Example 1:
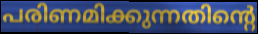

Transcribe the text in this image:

പരിണമിക്കുന്നതിന്റെ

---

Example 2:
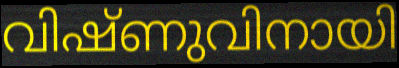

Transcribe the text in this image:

വിഷ്ണുവിനായി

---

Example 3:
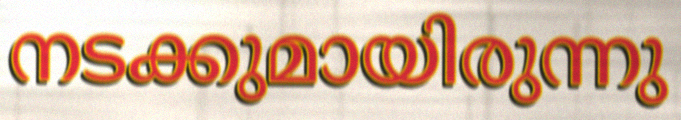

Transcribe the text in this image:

നടക്കുമായിരുന്നു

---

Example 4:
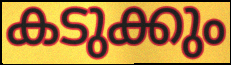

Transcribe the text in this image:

കടുക്കും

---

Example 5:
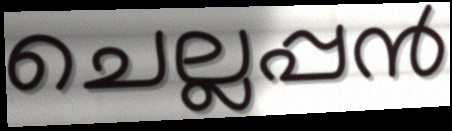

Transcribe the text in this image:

ചെല്ലപ്പൻ